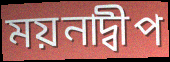
ময়নাদ্বীপ